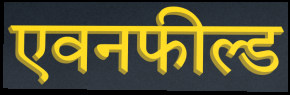
एवनफील्ड